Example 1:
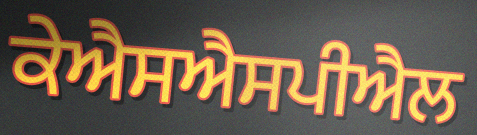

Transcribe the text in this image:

ਕੇਐਸਐਸਪੀਐਲ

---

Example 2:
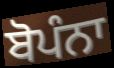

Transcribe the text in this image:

ਬੋਪੰਨਾ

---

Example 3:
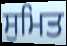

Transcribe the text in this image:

ਸੁਮਿਤ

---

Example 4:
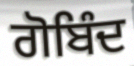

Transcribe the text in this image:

ਗੋਬਿੰਦ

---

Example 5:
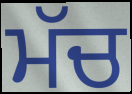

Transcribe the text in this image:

ਮੱਚ